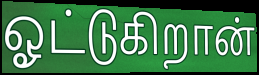
ஓட்டுகிறான்